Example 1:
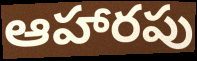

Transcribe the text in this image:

ఆహారపు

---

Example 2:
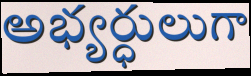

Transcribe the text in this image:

అభ్యర్ధులుగా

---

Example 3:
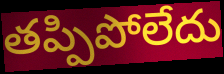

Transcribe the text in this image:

తప్పిపోలేదు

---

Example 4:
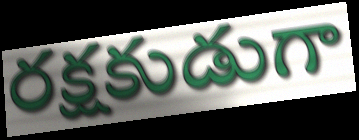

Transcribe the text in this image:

రక్షకుడుగా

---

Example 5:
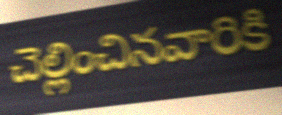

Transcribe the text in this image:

చెల్లించినవారికి